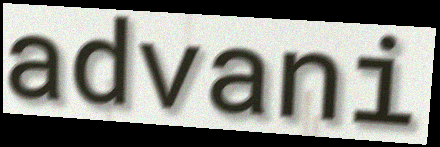
advani